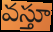
వస్తూ